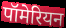
पॉमेरियन